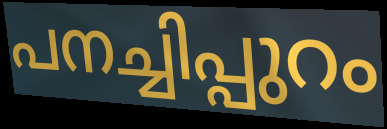
പനച്ചിപ്പുറം